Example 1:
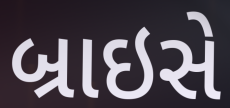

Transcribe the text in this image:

બ્રાઇસે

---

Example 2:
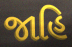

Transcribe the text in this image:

જાહિ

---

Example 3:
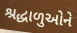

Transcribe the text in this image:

શ્રદ્ધાળુઓને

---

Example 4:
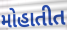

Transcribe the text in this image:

મોહાતીત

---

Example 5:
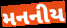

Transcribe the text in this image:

મનનીય